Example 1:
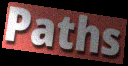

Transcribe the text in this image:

Paths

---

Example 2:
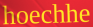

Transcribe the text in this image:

hoechhe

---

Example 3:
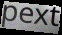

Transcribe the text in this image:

pext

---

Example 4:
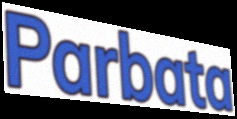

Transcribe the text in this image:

Parbata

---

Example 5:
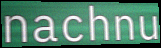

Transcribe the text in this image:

nachnu